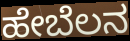
ಹೇಬೆಲನ